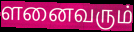
ளனைவரும்